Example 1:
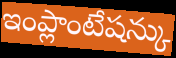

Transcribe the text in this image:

ఇంప్లాంటేషన్కు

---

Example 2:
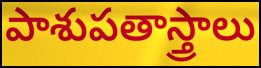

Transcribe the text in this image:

పాశుపతాస్త్రాలు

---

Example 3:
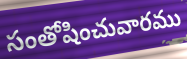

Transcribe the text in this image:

సంతోషించువారము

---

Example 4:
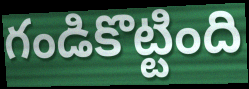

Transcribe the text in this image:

గండికొట్టింది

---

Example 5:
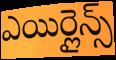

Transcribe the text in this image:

ఎయిర్లైన్స్